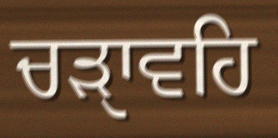
ਚੜੑਾਵਹਿ